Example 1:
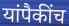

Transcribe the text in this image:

यांपैकींच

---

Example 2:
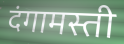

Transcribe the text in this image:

दंगामस्ती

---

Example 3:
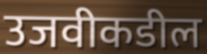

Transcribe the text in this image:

उजवीकडील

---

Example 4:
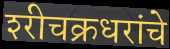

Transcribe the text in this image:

श्रीचक्रधरांचे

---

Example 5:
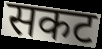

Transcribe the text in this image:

सकट